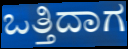
ಒತ್ತಿದಾಗ